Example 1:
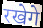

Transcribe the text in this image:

रखेगे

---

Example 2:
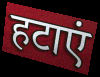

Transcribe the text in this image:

हटाएं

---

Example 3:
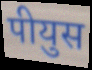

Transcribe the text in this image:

पीयुस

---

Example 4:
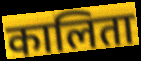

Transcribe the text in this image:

कालिता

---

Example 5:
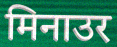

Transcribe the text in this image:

मिनाउर